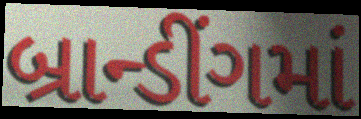
બ્રાન્ડીંગમાં